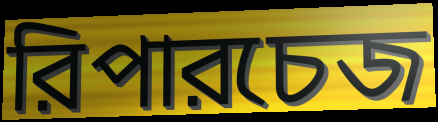
রিপারচেজ